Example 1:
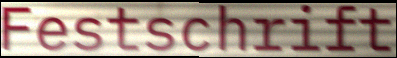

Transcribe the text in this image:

Festschrift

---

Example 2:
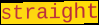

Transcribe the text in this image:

straight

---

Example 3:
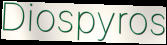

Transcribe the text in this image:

Diospyros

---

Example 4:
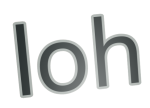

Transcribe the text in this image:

loh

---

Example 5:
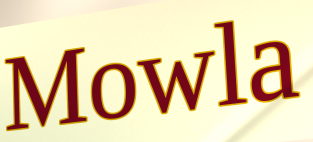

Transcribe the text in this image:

Mowla